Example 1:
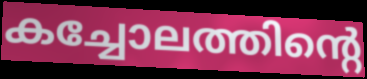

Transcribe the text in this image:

കച്ചോലത്തിന്റെ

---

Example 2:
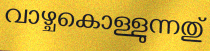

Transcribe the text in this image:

വാഴ്ചകൊള്ളുന്നതു്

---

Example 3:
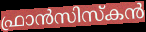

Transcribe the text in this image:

ഫ്രാൻസിസ്കൻ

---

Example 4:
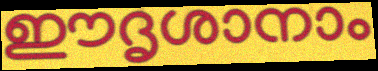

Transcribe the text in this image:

ഈദൃശാനാം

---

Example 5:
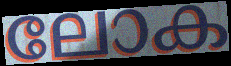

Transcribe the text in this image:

ലോക